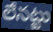
లేనట్టు